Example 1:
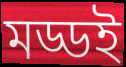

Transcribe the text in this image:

মড্ডই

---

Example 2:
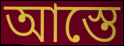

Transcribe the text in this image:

আস্তে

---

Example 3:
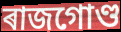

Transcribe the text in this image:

ৰাজগোণ্ড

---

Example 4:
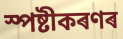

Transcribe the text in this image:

স্পষ্টীকৰণৰ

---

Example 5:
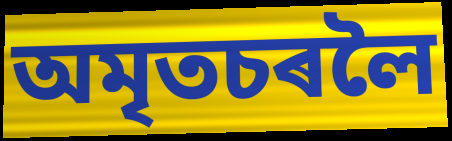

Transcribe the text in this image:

অমৃতচৰলৈ